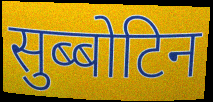
सुब्बोटिन